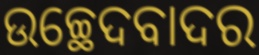
ଉଚ୍ଛେଦବାଦର